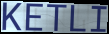
KETLI